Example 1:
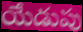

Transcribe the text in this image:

యేడుపు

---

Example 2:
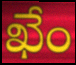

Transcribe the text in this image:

ఖేం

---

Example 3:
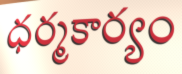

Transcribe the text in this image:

ధర్మకార్యం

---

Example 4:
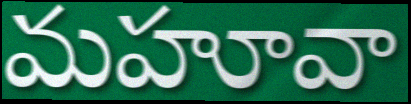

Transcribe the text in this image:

మహూవా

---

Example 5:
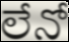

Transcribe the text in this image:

లేనో